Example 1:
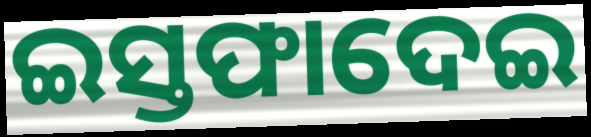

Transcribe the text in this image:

ଇସ୍ତଫାଦେଇ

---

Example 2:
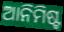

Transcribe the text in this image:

ଆନିମିଷ୍ଟ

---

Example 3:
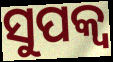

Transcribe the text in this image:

ସୁପକ୍ବ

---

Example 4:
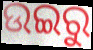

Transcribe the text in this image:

ଉଇରୁ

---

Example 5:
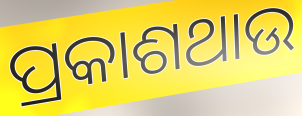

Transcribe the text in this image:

ପ୍ରକାଶଥାଉ